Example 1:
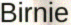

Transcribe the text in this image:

Birnie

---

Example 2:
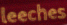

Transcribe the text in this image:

leeches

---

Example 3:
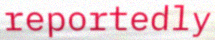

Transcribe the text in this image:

reportedly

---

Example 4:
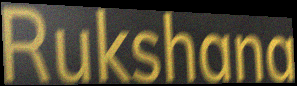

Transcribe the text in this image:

Rukshana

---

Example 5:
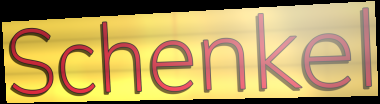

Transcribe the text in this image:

Schenkel